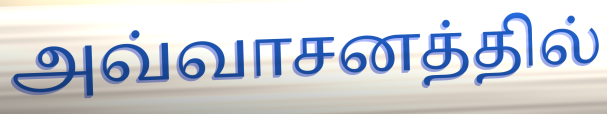
அவ்வாசனத்தில்